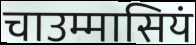
चाउम्मासियं